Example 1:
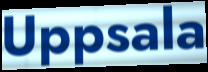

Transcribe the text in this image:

Uppsala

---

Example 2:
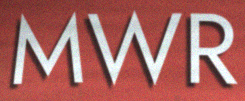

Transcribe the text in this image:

MWR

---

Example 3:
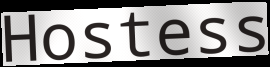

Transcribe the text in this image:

Hostess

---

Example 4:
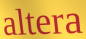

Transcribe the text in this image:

altera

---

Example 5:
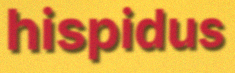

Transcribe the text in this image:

hispidus